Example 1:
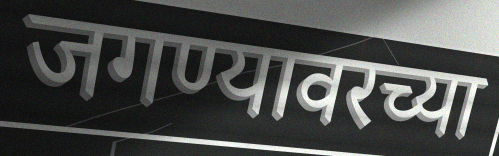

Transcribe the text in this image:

जगण्यावरच्या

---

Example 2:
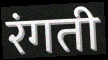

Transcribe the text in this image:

रंगती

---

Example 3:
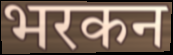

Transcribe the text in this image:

भरकन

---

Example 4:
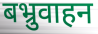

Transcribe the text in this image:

बभ्रुवाहन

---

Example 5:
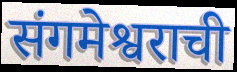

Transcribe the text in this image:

संगमेश्वराची